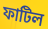
ফাটিল